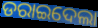
ଡରାଇଦେଲା